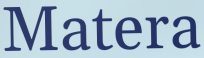
Matera